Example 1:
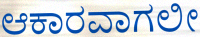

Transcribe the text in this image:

ಆಕಾರವಾಗಲೀ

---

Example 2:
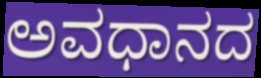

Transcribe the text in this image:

ಅವಧಾನದ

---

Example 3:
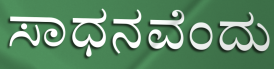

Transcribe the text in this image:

ಸಾಧನವೆಂದು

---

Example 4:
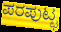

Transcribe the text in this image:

ಪರಪುಟ್ಟ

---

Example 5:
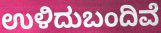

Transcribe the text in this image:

ಉಳಿದುಬಂದಿವೆ